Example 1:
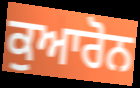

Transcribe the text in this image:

ਕੁਆਰੋਨ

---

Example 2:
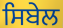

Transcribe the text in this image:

ਸਿਬੇਲ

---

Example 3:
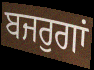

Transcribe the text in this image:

ਬਜਰੁਗਾਂ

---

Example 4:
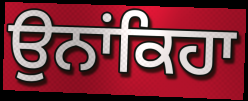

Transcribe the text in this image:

ਉਨਾਂਕਿਹਾ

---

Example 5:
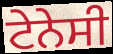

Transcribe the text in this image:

ਟੇਨੇਸੀ